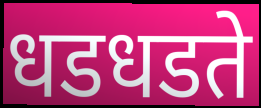
धडधडते